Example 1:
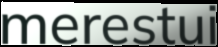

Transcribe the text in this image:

merestui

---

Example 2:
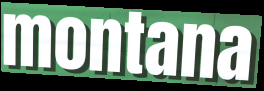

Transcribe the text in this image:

montana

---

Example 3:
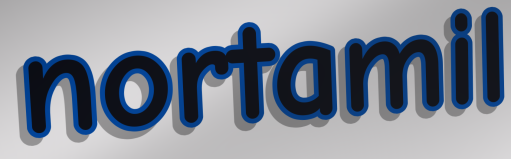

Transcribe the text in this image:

nortamil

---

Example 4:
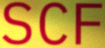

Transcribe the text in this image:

SCF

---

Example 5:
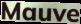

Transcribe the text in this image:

Mauve